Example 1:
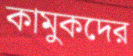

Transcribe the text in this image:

কামুকদের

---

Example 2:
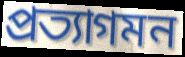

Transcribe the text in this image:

প্রত্যাগমন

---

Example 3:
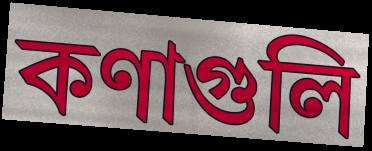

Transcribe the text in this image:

কণাগুলি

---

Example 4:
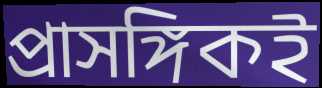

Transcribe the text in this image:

প্রাসঙ্গিকই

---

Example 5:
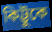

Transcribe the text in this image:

কিট্টুকে